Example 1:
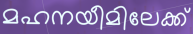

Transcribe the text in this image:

മഹനയീമിലേക്ക്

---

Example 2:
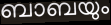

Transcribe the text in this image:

ബാബയും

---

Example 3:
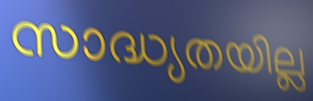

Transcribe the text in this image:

സാദ്ധ്യതയില്ല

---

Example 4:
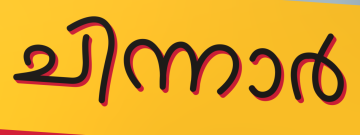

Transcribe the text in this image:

ചിന്നാർ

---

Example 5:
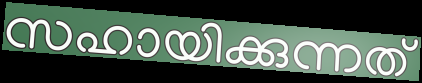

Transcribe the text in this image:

സഹായിക്കുന്നത്